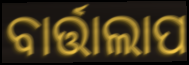
ବାର୍ତ୍ତାଲାପ